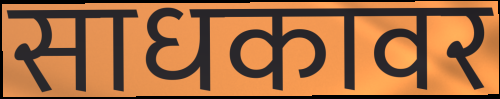
साधकावर